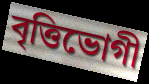
বৃত্তিভোগী